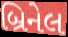
બ્રિનેલ